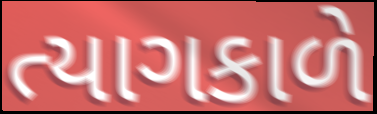
ત્યાગકાળે